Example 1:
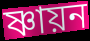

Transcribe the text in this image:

ষ্ণায়ন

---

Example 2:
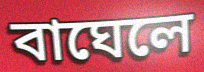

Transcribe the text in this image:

বাঘেলে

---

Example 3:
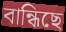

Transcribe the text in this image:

বান্ধিছে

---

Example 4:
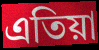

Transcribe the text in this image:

এতিয়া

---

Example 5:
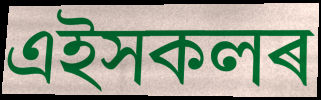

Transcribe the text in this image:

এইসকলৰ